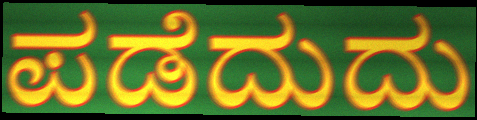
ಪಡೆದುದು